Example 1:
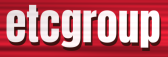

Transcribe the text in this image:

etcgroup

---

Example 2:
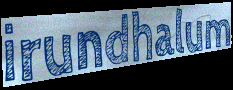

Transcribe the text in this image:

irundhalum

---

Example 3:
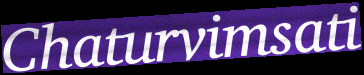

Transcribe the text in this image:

Chaturvimsati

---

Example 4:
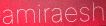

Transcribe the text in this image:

amiraesh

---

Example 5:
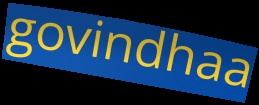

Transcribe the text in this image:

govindhaa